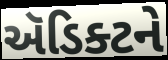
ઍડિક્ટને